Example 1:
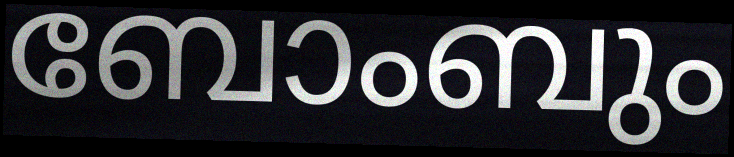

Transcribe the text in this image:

ബോംബും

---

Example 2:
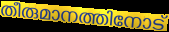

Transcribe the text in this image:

തീരുമാനത്തിനോട്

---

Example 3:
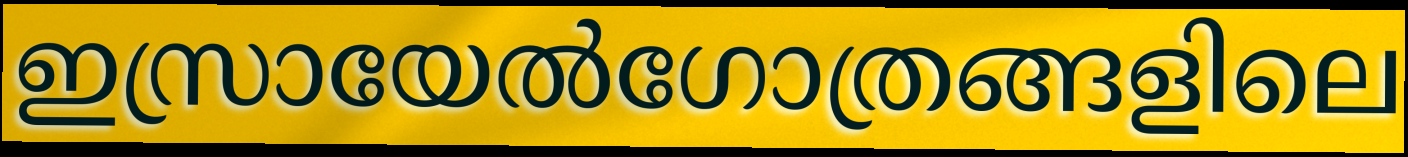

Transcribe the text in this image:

ഇസ്രായേൽഗോത്രങ്ങളിലെ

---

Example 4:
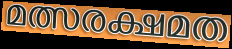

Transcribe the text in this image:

മത്സരക്ഷമത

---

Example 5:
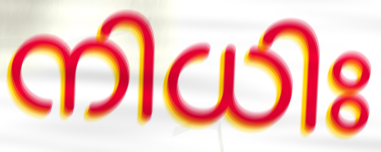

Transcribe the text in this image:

നിധിഃ